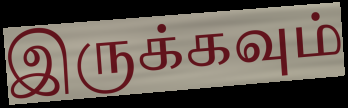
இருக்கவும்